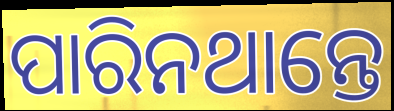
ପାରିନଥାନ୍ତେ